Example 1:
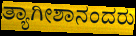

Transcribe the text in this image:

ತ್ಯಾಗೀಶಾನಂದರು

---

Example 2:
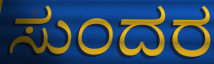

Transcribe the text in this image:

ಸುಂದರ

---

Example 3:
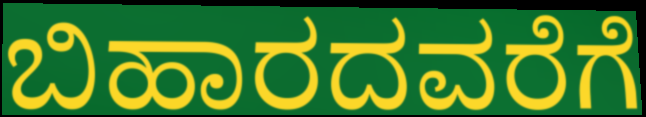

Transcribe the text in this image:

ಬಿಹಾರದವರೆಗೆ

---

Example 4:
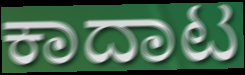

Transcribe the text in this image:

ಕಾದಾಟ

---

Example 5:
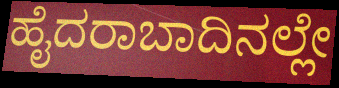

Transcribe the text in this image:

ಹೈದರಾಬಾದಿನಲ್ಲೇ